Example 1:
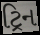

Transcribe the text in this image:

ટ્રિન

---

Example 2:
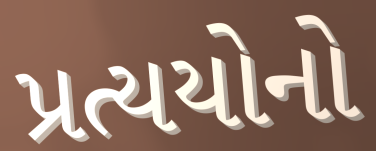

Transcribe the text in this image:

પ્રત્યયોનો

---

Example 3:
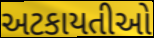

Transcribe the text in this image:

અટકાયતીઓ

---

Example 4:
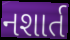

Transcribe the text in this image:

નશાર્ત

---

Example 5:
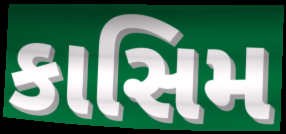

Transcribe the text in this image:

કાસિમ